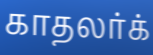
காதலர்க்